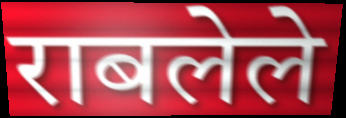
राबलेले